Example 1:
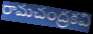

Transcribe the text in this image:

రామచంద్రకవి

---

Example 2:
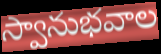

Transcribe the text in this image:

స్వానుభవాల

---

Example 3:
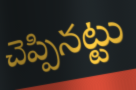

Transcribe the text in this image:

చెప్పినట్టు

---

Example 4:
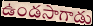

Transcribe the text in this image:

ఉండసాగాడు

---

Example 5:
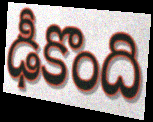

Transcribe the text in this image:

ఢీకొంది